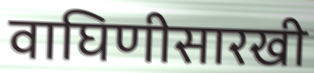
वाघिणीसारखी